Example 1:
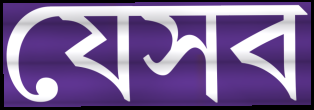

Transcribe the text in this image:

যেসব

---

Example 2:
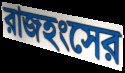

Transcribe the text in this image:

রাজহংসের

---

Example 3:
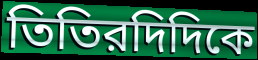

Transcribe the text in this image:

তিতিরদিদিকে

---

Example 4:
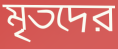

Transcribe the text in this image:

মৃতদের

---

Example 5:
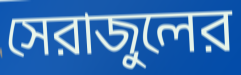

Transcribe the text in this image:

সেরাজুলের